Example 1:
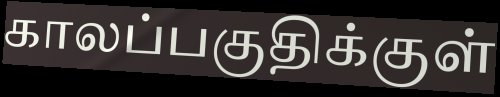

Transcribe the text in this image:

காலப்பகுதிக்குள்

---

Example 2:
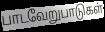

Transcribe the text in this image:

பாடவேறுபாடுகள்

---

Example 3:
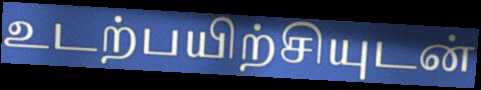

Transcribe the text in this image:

உடற்பயிற்சியுடன்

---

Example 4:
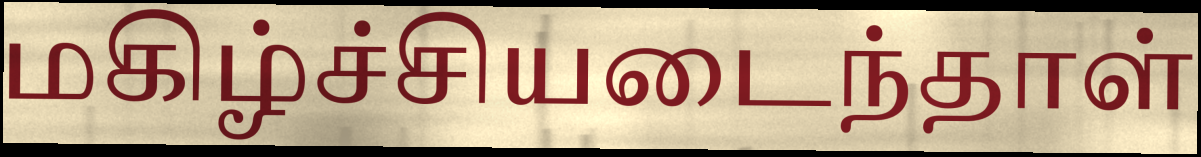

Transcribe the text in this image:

மகிழ்ச்சியடைந்தாள்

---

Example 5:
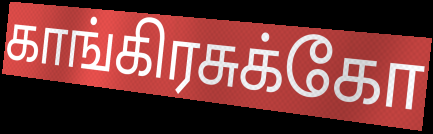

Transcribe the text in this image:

காங்கிரசுக்கோ